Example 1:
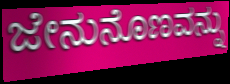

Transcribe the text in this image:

ಜೇನುನೊಣವನ್ನು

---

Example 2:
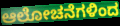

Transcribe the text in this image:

ಆಲೋಚನೆಗಳಿಂದ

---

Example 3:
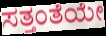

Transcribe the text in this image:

ಸತ್ತಂತೆಯೇ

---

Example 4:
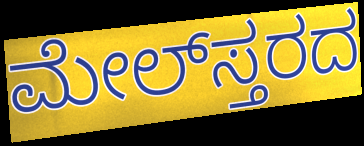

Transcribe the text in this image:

ಮೇಲ್‌ಸ್ತರದ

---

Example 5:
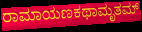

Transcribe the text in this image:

ರಾಮಾಯಣಕಥಾಮೃತಮ್